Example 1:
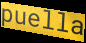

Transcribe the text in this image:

puella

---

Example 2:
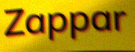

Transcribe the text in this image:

Zappar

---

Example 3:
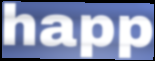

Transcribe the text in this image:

happ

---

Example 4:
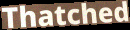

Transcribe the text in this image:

Thatched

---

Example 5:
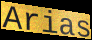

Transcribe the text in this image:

Arias